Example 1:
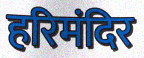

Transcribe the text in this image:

हरिमंदिर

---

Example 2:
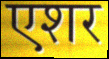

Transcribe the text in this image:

एशर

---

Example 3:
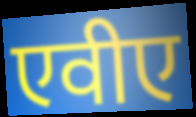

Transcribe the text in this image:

एवीए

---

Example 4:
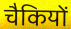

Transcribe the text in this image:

चैकियों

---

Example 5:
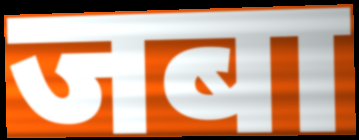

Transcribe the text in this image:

जबा